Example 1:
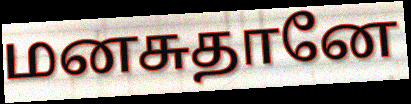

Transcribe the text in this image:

மனசுதானே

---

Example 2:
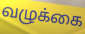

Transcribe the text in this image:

வழுக்கை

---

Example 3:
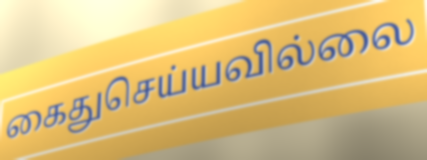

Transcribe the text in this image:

கைதுசெய்யவில்லை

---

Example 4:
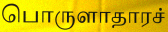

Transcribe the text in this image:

பொருளாதாரச்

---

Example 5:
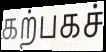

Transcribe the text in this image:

கற்பகச்